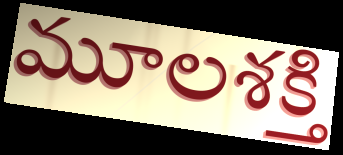
మూలశక్తి